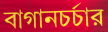
বাগানচর্চার